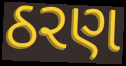
ઠરણ